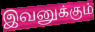
இவனுக்கும்